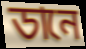
ডানে